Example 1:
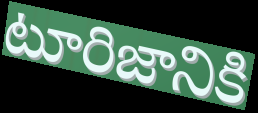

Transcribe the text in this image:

టూరిజానికి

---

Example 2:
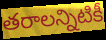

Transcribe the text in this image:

తరాలన్నిటికీ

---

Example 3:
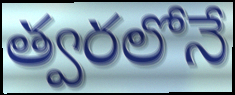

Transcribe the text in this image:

త్వరలోనే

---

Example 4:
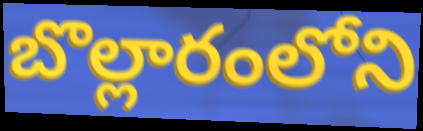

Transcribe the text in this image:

బొల్లారంలోని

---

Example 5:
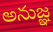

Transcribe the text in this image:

అనుజ్ఞ